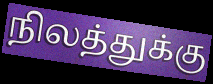
நிலத்துக்கு